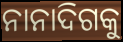
ନାନାଦିଗକୁ